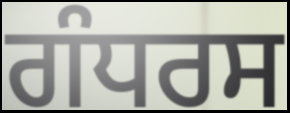
ਗੰਧਰਸ